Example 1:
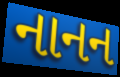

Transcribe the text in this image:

નાનન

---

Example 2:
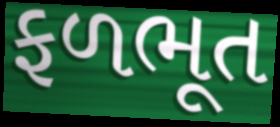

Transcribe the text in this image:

ફળભૂત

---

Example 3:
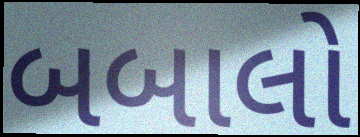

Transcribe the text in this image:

બબાલો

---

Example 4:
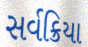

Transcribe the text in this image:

સર્વક્રિયા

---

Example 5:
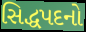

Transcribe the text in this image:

સિદ્ધપદનો